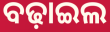
ବଢ଼ାଇଲ